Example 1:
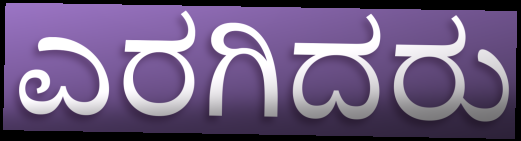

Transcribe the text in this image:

ಎರಗಿದರು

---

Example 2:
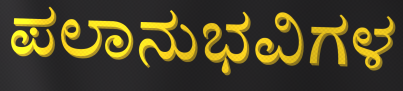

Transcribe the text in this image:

ಪಲಾನುಭವಿಗಳ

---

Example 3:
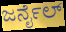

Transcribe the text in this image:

ಜರ್ನೈಲ್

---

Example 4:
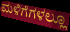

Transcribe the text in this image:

ಮಳಿಗೆಗಳಲ್ಲೂ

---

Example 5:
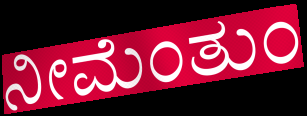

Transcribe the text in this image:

ನೀಮೆಂತುಂ